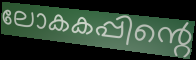
ലോകകപ്പിന്റെ